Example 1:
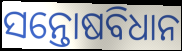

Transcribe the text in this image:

ସନ୍ତୋଷବିଧାନ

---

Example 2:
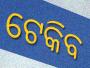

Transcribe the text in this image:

ଟେକିବ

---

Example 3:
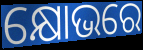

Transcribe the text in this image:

କ୍ଷୋଭରେ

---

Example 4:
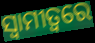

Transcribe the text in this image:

ସ୍ୱାମୀତ୍ୱରେ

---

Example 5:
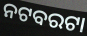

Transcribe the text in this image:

ନଟବରଟା